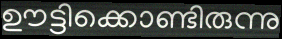
ഊട്ടിക്കൊണ്ടിരുന്നു